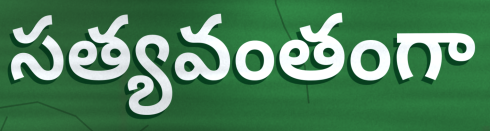
సత్యవంతంగా